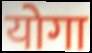
योगा